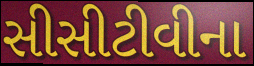
સીસીટીવીના